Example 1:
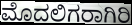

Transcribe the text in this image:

ಮೊದಲಿಗರಾಗಿರಿ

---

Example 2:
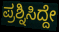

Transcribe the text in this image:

ಪ್ರಶ್ನಿಸಿದ್ದೇ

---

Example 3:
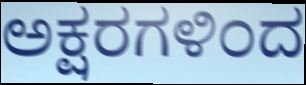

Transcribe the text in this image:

ಅಕ್ಷರಗಳಿಂದ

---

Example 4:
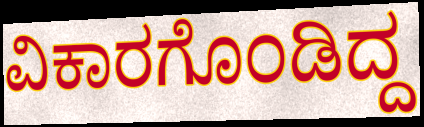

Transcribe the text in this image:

ವಿಕಾರಗೊಂಡಿದ್ದ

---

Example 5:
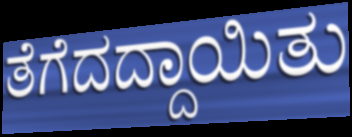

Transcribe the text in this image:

ತೆಗೆದದ್ದಾಯಿತು